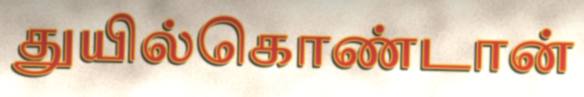
துயில்கொண்டான்